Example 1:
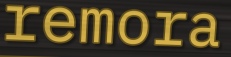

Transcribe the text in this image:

remora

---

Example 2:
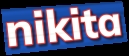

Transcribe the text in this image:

nikita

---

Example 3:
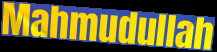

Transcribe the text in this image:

Mahmudullah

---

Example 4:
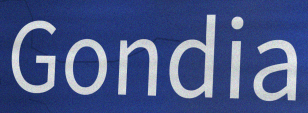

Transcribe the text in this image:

Gondia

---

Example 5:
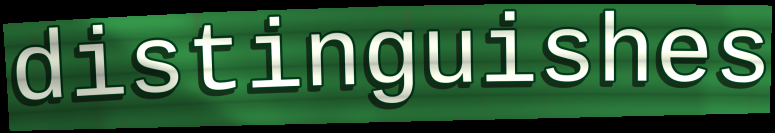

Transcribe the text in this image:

distinguishes